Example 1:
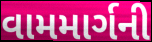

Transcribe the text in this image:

વામમાર્ગની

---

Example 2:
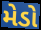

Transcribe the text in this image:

મેડો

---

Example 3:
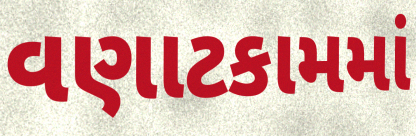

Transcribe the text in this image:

વણાટકામમાં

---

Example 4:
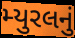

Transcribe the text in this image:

મ્યુરલનું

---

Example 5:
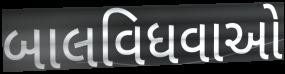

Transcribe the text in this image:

બાલવિધવાઓ